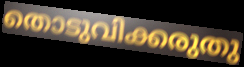
തൊടുവിക്കരുതു